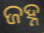
ଜହ୍ନ